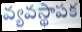
వ్యవస్థాపక